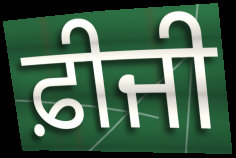
ਫ਼ੀਜੀ